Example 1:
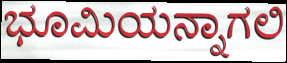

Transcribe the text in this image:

ಭೂಮಿಯನ್ನಾಗಲಿ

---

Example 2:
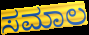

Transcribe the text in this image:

ಸಮಾಲ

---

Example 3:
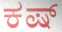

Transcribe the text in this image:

ಕಷ್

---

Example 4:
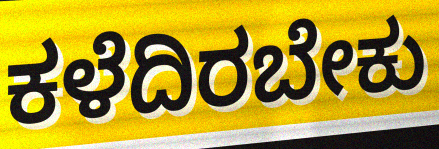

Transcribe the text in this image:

ಕಳೆದಿರಬೇಕು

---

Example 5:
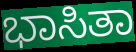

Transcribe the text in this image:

ಭಾಸಿತಾ